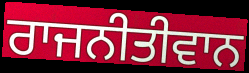
ਰਾਜਨੀਤੀਵਾਨ